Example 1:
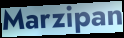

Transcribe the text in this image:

Marzipan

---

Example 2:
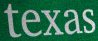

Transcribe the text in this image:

texas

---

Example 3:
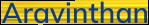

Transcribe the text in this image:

Aravinthan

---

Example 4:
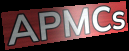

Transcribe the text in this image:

APMCs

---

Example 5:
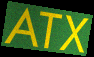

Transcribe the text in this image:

ATX